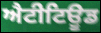
ਐਟੀਟਿਊਡ